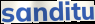
sanditu